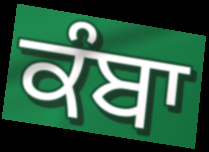
ਕੰਬਾ